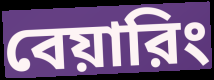
বেয়ারিং